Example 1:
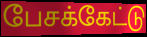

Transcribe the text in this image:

பேசக்கேட்டு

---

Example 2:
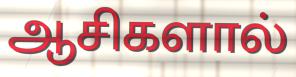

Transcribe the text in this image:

ஆசிகளால்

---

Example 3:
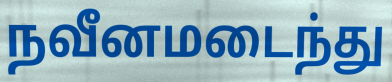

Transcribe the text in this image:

நவீனமடைந்து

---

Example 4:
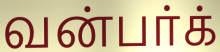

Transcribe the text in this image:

வன்பர்க்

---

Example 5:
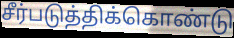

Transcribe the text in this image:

சீர்படுத்திக்கொண்டு